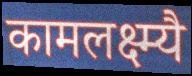
कामलक्ष्म्यै